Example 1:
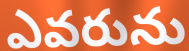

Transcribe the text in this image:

ఎవరును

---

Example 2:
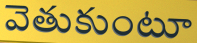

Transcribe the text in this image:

వెతుకుంటూ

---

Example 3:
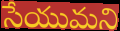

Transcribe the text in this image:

సేయుమని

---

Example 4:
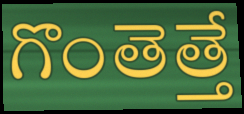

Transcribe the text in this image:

గొంతెత్తే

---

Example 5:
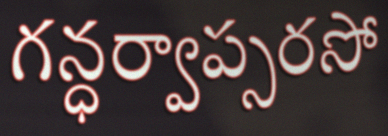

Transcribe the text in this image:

గన్ధర్వాప్సరసో